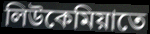
লিউকেমিয়াতে